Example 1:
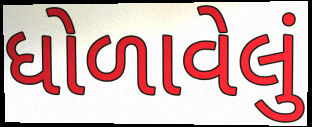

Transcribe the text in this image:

ધોળાવેલું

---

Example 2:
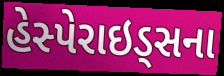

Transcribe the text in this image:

હેસ્પેરાઇડ્સના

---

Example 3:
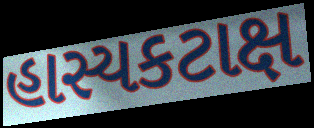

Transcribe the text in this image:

હાસ્યકટાક્ષ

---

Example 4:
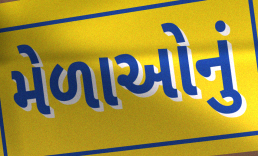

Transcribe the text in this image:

મેળાઓનું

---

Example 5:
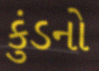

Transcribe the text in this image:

કુંડનો